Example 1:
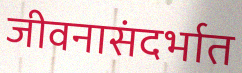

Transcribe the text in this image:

जीवनासंदर्भात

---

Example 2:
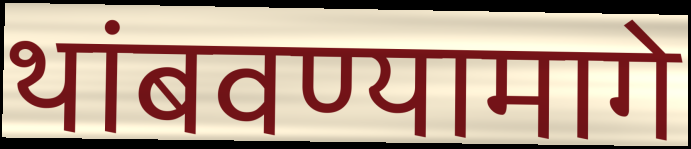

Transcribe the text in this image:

थांबवण्यामागे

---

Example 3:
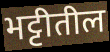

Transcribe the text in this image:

भट्टीतील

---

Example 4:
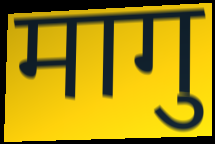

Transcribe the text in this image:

मागु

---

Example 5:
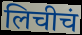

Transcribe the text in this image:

लिचीचं